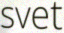
svet